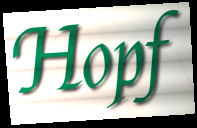
Hopf